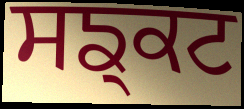
ਸਙ੍ਕਟ